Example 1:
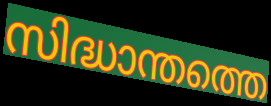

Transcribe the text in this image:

സിദ്ധാന്തത്തെ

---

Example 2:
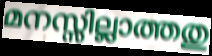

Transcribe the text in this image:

മനസ്സില്ലാത്തതു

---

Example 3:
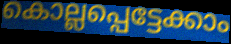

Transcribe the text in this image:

കൊല്ലപ്പെട്ടേക്കാം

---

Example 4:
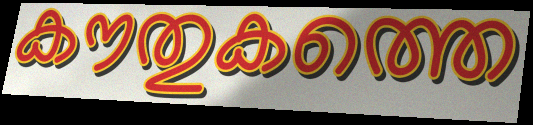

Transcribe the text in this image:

കൗതുകത്തെ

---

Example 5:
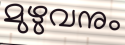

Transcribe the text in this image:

മുഴുവനും